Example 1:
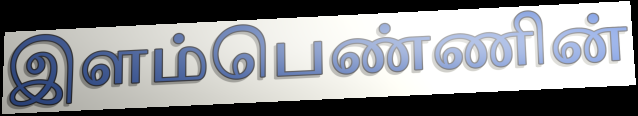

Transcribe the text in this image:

இளம்பெண்ணின்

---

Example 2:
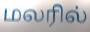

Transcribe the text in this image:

மலரில்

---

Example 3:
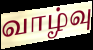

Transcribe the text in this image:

வாழ்வு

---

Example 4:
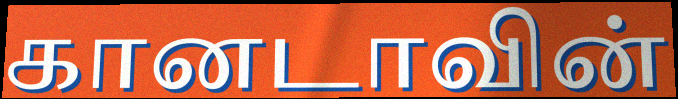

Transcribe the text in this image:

கானடாவின்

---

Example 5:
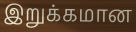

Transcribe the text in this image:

இறுக்கமான